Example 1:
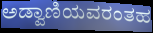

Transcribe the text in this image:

ಅಡ್ವಾಣಿಯವರಂತಹ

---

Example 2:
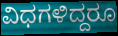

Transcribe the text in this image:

ವಿಧಗಳಿದ್ದರೂ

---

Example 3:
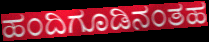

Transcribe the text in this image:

ಹಂದಿಗೂಡಿನಂತಹ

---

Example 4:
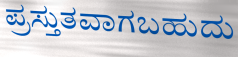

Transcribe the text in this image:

ಪ್ರಸ್ತುತವಾಗಬಹುದು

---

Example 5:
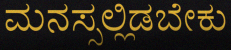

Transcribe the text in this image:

ಮನಸ್ಸಲ್ಲಿಡಬೇಕು